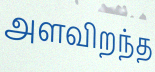
அளவிறந்த